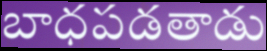
బాధపడతాడు